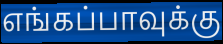
எங்கப்பாவுக்கு